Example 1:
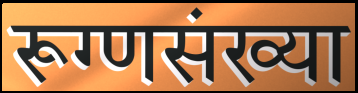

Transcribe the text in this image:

रूग्णसंख्या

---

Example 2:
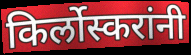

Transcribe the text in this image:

किर्लोस्करांनी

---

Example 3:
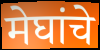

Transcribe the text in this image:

मेघांचे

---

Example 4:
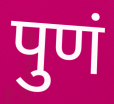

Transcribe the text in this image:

पुणं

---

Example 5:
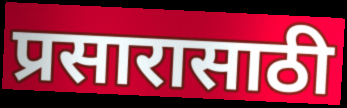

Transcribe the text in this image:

प्रसारासाठी